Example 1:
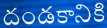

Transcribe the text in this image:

దండకానికి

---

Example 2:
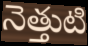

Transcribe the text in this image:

నెత్తుటి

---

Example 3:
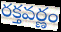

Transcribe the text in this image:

రక్తవర్ణం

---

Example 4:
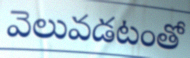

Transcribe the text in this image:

వెలువడటంతో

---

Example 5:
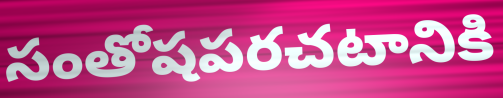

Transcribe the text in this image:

సంతోషపరచటానికి